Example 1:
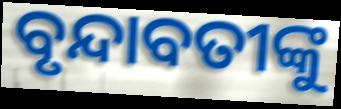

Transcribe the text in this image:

ବୃନ୍ଦାବତୀଙ୍କୁ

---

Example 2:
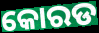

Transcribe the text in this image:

କୋରଡ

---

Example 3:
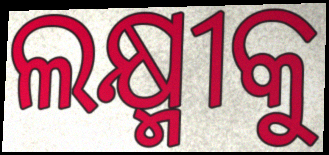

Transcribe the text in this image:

ଲକ୍ଷ୍ମୀକୁ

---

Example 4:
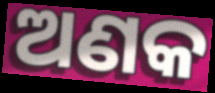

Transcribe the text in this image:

ଅଣକ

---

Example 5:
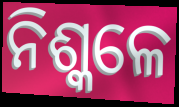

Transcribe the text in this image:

ନିଶ୍କଳେ